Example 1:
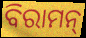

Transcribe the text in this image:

ବିରାମନ୍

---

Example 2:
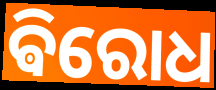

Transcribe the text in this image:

ଵିରୋଧ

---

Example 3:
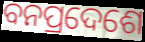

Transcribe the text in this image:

ବନପ୍ରଦେଶେ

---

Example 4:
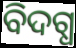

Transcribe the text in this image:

ବିଦଗ୍ଧ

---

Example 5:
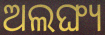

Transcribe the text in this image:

ଅଲଙ୍ଘ୍ୟ